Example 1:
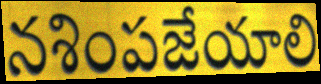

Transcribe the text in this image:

నశింపజేయాలి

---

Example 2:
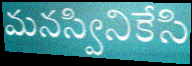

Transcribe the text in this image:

మనస్వినికేసి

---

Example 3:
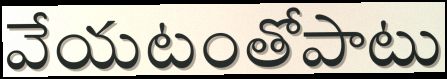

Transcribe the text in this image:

వేయటంతోపాటు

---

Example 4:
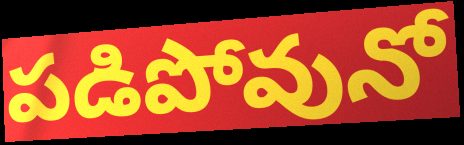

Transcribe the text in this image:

పడిపోవునో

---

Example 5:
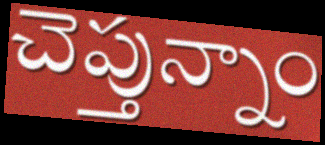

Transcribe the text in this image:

చెప్తున్నాం